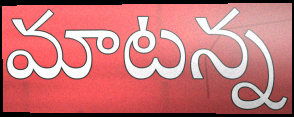
మాటన్న